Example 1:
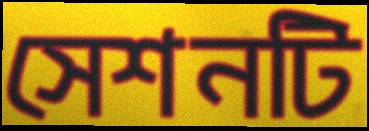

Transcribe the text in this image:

সেশনটি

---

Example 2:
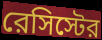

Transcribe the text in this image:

রেসিস্টের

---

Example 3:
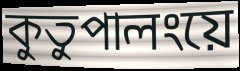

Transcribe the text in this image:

কুতুপালংয়ে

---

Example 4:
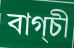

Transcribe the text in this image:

বাগ্চী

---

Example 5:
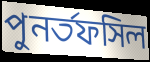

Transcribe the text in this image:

পুনর্তফসিল